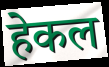
हेकल